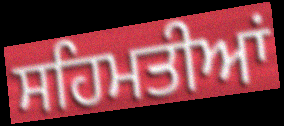
ਸਹਿਮਤੀਆਂ